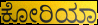
ಕೋರಿಯಾ